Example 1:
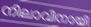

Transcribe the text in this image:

നിലാവിനായി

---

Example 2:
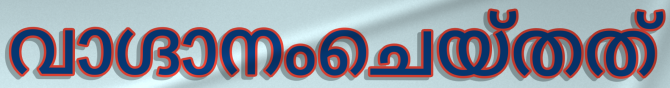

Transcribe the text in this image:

വാഗ്ദാനംചെയ്തത്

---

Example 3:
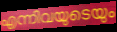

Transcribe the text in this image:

എന്നിവയുടെയും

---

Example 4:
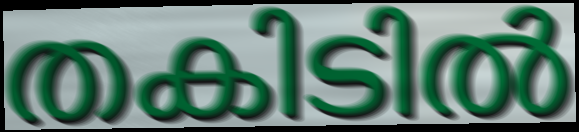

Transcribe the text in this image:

തകിടിൽ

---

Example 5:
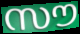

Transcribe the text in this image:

സൗ